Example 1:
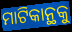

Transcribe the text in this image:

ମାଟିକାନ୍ଥକୁ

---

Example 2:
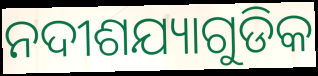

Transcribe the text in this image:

ନଦୀଶଯ୍ୟାଗୁଡିକ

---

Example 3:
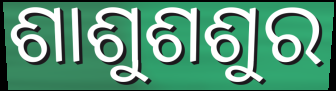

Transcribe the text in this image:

ଶାଶୁଶଶୁର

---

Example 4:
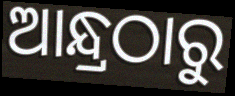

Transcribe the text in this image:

ଆନ୍ଧ୍ରଠାରୁ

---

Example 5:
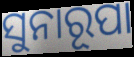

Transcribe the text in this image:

ସୁନାରୂପା